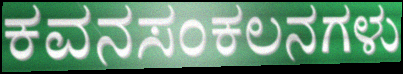
ಕವನಸಂಕಲನಗಳು